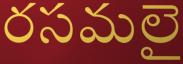
రసమలై